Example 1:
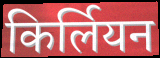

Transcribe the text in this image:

किर्लियन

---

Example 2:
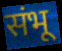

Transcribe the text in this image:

संभू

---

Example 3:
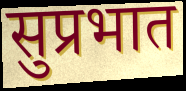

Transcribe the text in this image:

सुप्रभात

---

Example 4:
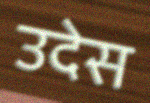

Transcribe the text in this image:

उदेस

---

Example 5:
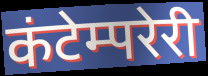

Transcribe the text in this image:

कंटेम्परेरी